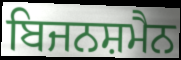
ਬਿਜਨਸ਼ਮੈਨ